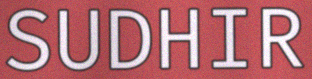
SUDHIR